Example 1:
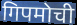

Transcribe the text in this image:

गिपमोची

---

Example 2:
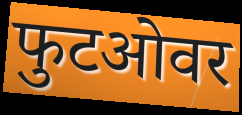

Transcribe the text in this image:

फुटओवर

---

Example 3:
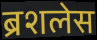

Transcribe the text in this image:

ब्रशलेस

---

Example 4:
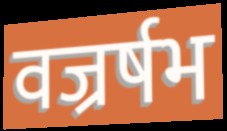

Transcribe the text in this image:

वज्रर्षभ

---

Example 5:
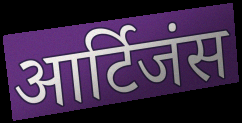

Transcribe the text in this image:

आर्टिजंस